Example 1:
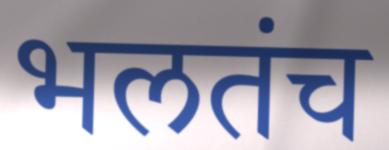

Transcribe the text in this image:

भलतंच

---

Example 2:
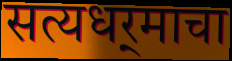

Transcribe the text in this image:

सत्यधर्माचा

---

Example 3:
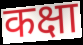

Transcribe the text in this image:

कक्षा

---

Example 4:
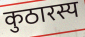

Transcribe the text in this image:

कुठारस्य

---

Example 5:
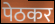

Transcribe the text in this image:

पेठकर